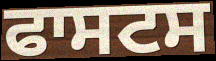
ਫਾਸਟਸ